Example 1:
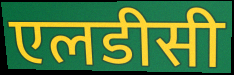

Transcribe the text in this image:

एलडीसी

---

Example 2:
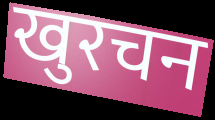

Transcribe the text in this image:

खुरचन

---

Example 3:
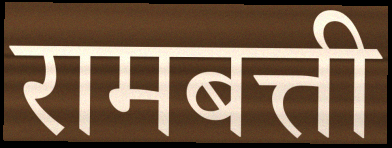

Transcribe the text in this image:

रामबत्ती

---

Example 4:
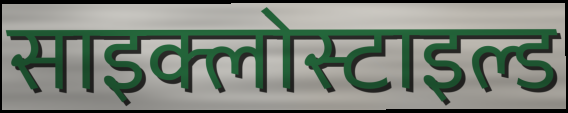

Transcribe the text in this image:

साइक्लोस्टाइल्ड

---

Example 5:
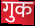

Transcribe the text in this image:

गुक